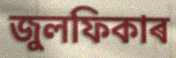
জুলফিকাৰ